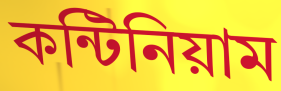
কন্টিনিয়াম